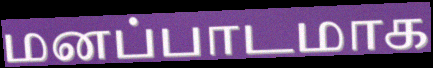
மனப்பாடமாக